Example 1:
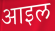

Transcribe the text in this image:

आइल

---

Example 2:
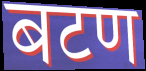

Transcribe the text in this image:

बटण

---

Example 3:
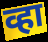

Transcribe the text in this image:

व्हा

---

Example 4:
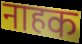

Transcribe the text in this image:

नाहक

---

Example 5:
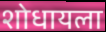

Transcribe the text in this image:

शोधायला